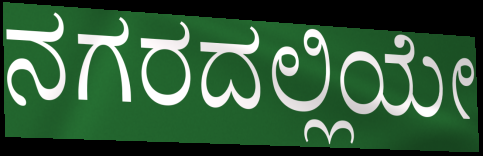
ನಗರದಲ್ಲಿಯೇ